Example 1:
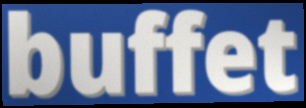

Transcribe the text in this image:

buffet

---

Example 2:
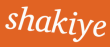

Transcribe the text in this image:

shakiye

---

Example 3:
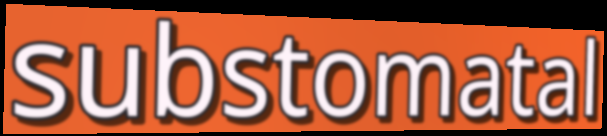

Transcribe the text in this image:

substomatal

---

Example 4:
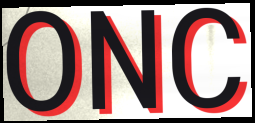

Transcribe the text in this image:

ONC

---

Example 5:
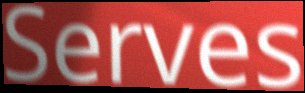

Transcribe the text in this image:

Serves